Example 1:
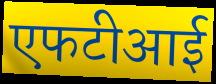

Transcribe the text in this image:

एफटीआई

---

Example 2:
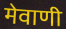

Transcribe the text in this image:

मेवाणी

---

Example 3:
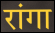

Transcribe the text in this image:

रांगा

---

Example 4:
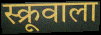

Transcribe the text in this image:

स्क्रूवाला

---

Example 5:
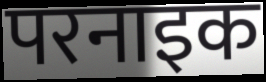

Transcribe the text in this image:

परनाइक